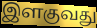
இளகுவது